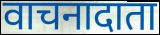
वाचनादाता